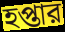
হপ্তার